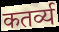
कतर्व्य